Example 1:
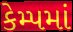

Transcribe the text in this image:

કેમ્પમાં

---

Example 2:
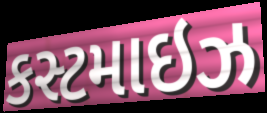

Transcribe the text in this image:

કસ્ટમાઇઝ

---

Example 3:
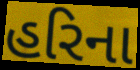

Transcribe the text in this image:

હરિના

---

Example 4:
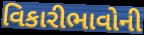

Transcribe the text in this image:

વિકારીભાવોની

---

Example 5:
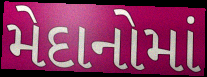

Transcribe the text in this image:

મેદાનોમાં